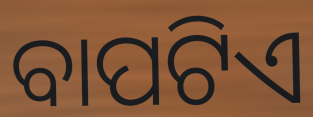
ବାପଟିଏ